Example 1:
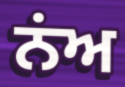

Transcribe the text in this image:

ਨਂਅ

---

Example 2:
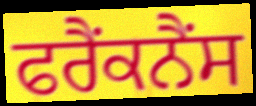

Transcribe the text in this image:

ਫਰੈਂਕਨੈਂਸ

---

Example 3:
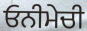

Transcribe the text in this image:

ਓਨੀਮੇਚੀ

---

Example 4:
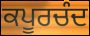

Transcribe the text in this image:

ਕਪੂਰਚੰਦ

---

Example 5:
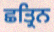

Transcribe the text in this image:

ਛਤ੍ਰਿਨ